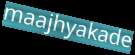
maajhyakade